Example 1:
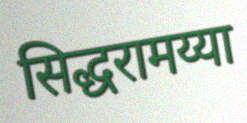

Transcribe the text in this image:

सिद्धरामय्या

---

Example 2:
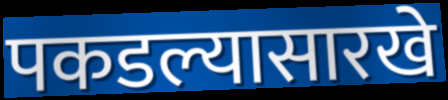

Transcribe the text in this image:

पकडल्यासारखे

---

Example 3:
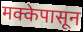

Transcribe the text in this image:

मक्केपासून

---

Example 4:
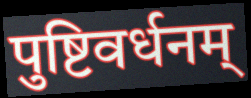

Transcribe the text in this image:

पुष्टिवर्धनम्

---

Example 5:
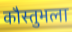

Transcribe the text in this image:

कौस्तुभला